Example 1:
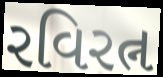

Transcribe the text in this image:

રવિરત્ન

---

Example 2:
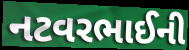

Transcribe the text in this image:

નટવરભાઈની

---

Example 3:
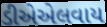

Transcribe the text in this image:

ડીએએલવાય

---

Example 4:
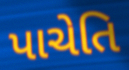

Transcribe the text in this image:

પાચેતિ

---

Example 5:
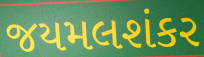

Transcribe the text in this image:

જયમલશંકર